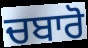
ਚਬਾਰੋ